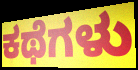
ಕಥೆಗಳು